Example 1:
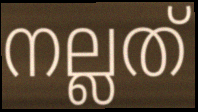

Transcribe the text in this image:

നല്ലത്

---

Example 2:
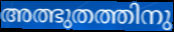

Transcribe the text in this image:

അത്ഭുതത്തിനു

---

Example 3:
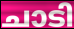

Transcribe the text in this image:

ചാടി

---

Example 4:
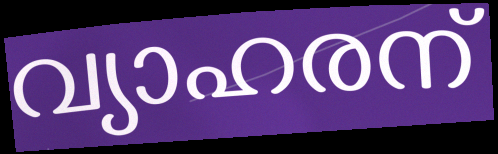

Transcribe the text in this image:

വ്യാഹരന്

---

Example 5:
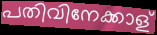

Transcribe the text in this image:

പതിവിനേക്കാള്